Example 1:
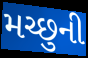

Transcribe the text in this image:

મચ્છુની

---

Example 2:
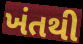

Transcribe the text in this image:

ખંતથી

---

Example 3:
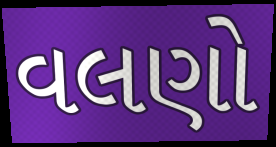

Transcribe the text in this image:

વલણો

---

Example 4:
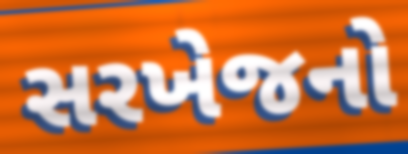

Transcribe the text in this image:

સરખેજનો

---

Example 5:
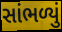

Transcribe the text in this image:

સાંભળ્યું